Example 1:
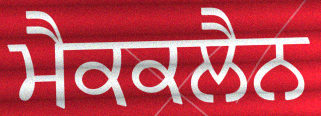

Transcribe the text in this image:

ਮੈਕਕਲੈਨ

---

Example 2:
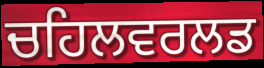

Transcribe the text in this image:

ਚਹਿਲਵਰਲਡ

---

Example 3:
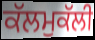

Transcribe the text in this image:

ਕੱਲਮੁਕੱਲੀ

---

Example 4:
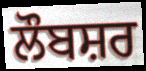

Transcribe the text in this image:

ਲੌਬਸ਼ਰ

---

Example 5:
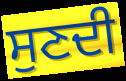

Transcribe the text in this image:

ਸੁਣਦੀ